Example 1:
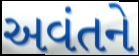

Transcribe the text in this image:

અવંતને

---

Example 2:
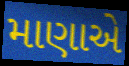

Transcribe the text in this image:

માણાએ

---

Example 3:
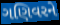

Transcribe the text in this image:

ગણિવરને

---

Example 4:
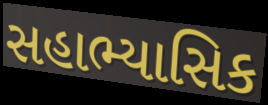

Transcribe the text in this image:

સહાભ્યાસિક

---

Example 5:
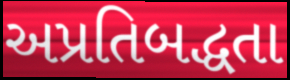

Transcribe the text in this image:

અપ્રતિબદ્ધતા